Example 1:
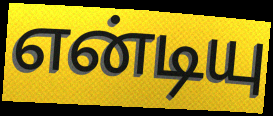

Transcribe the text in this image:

என்டியு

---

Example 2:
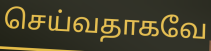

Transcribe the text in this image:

செய்வதாகவே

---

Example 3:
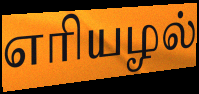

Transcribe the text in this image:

எரியழல்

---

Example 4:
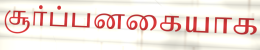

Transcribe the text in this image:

சூர்ப்பனகையாக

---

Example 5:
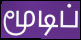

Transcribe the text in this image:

மூடிப்